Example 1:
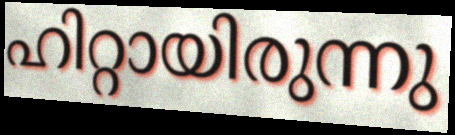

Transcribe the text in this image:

ഹിറ്റായിരുന്നു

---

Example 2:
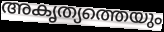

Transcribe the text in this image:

അകൃത്യത്തെയും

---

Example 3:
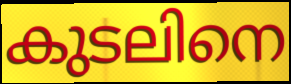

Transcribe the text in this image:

കുടലിനെ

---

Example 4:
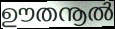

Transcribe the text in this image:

ഊതനൂൽ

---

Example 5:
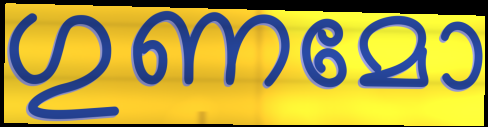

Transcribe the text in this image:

ഗുണമോ